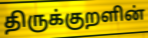
திருக்குறளின்